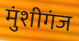
मुंशीगंज